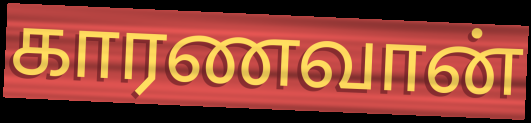
காரணவான்